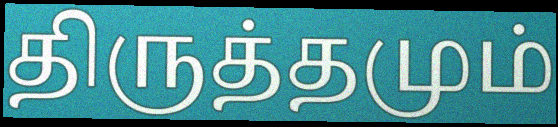
திருத்தமும்